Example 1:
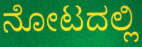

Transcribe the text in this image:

ನೋಟದಲ್ಲಿ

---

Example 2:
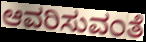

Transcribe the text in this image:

ಆವರಿಸುವಂತೆ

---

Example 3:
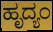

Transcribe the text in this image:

ಹೃದ್ಯಂ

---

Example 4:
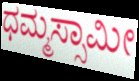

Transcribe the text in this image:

ಧಮ್ಮಸ್ಸಾಮೀ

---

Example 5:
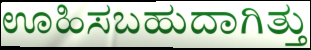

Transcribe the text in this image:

ಊಹಿಸಬಹುದಾಗಿತ್ತು